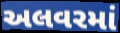
અલવરમાં